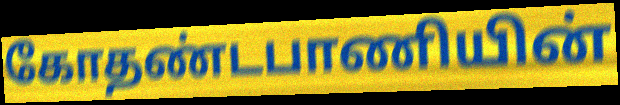
கோதண்டபாணியின்